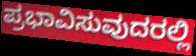
ಪ್ರಭಾವಿಸುವುದರಲ್ಲಿ